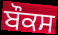
ਬੌਕਸ